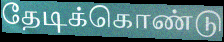
தேடிக்கொண்டு